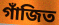
গাঁজিত